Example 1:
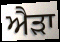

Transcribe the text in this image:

ਐੜਾ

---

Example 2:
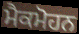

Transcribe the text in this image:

ਮੈਕਮੋਹਨ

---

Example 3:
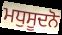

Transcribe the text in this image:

ਮਧੁਸੂਦਨੋ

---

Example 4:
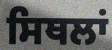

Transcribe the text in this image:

ਸਿਥਲਾਂ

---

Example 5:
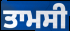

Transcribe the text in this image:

ਤਾਮਸੀ